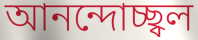
আনন্দোচ্ছ্বল